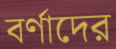
বর্ণাদের